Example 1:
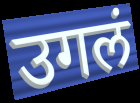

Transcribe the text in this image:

उगलं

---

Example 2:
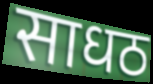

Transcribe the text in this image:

साधठ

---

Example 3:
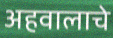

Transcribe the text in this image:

अहवालाचे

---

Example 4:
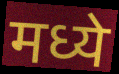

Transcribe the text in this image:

मध्ये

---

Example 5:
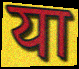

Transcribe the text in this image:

या